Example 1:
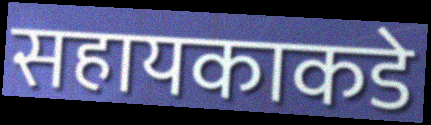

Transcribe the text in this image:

सहायकाकडे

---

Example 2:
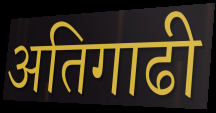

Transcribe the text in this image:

अतिगाढी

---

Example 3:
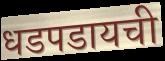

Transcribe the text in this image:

धडपडायची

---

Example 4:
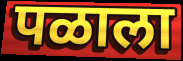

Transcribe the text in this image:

पळाला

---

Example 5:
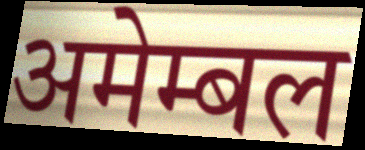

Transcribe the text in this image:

अमेम्बल